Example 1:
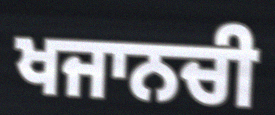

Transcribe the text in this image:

ਖਜਾਨਚੀ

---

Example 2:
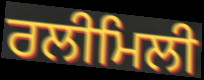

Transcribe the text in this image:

ਰਲੀਮਿਲੀ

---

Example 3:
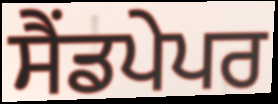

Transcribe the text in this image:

ਸੈਂਡਪੇਪਰ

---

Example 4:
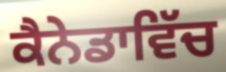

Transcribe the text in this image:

ਕੈਨੇਡਾਵਿੱਚ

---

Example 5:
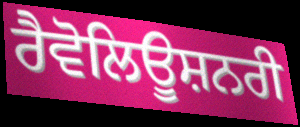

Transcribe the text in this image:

ਰੈਵੋਲਿਊਸ਼ਨਰੀ